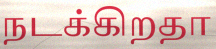
நடக்கிறதா